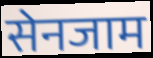
सेनजाम